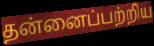
தன்னைப்பற்றிய